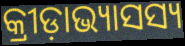
କ୍ରୀଡ଼ାଭ୍ୟାସସ୍ୟ